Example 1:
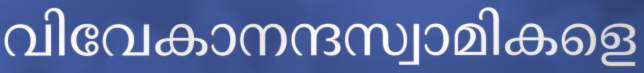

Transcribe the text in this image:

വിവേകാനന്ദസ്വാമികളെ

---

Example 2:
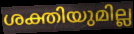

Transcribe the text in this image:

ശക്തിയുമില്ല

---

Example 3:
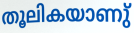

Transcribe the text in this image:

തൂലികയാണു്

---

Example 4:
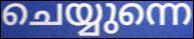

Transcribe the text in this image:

ചെയ്യുന്നെ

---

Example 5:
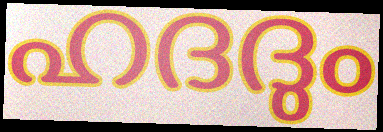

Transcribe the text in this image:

ഹദദും